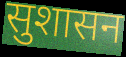
सुशासन